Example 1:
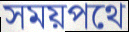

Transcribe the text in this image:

সময়পথে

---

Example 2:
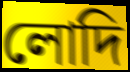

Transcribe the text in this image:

লোদি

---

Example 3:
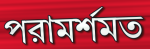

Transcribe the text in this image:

পরামর্শমত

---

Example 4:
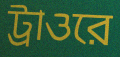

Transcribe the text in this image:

ট্রাওরে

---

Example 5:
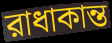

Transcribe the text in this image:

রাধাকান্ত